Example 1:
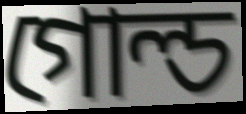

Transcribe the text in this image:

গোল্ড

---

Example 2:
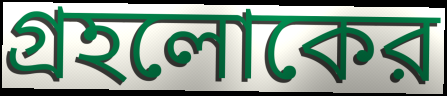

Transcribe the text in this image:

গ্রহলোকের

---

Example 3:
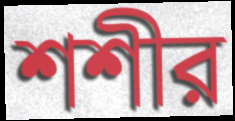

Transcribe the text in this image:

শশীর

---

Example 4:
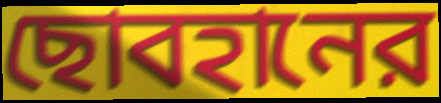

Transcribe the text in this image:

ছোবহানের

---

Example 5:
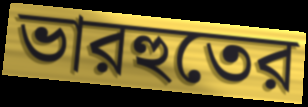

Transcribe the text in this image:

ভারহুতের